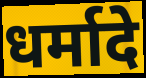
धर्मादे